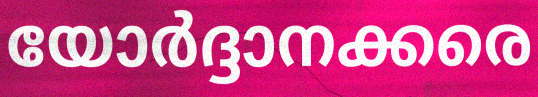
യോർദ്ദാനക്കരെ